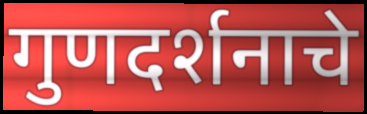
गुणदर्शनाचे